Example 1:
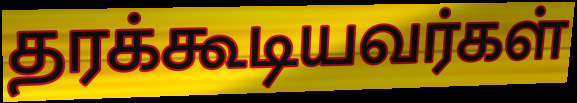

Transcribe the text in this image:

தரக்கூடியவர்கள்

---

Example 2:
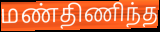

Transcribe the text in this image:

மண்திணிந்த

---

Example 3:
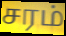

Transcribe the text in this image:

சரம்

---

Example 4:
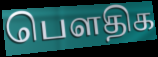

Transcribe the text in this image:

பெளதிக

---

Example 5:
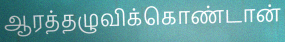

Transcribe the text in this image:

ஆரத்தழுவிக்கொண்டான்